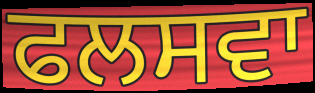
ਫਲਸਵਾ